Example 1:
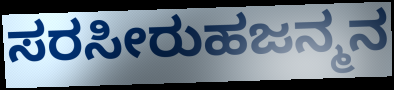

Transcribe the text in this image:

ಸರಸೀರುಹಜನ್ಮನ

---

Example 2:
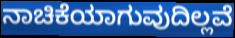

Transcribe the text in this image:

ನಾಚಿಕೆಯಾಗುವುದಿಲ್ಲವೆ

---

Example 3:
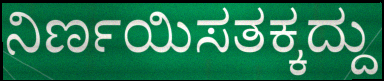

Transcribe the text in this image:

ನಿರ್ಣಯಿಸತಕ್ಕದ್ದು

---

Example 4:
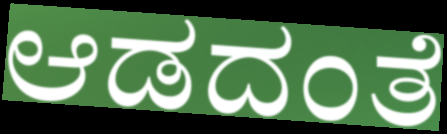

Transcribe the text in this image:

ಆಡದಂತೆ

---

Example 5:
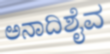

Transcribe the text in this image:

ಅನಾದಿಶೈವ